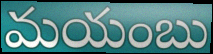
మయంబు